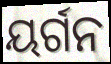
ୟର୍ଗନ